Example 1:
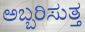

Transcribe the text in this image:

ಅಬ್ಬರಿಸುತ್ತ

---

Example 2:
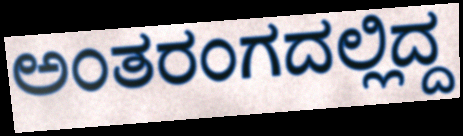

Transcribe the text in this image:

ಅಂತರಂಗದಲ್ಲಿದ್ದ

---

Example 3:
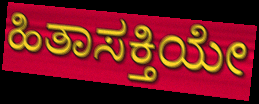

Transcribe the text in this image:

ಹಿತಾಸಕ್ತಿಯೇ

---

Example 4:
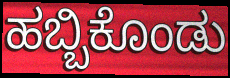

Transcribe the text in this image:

ಹಬ್ಬಿಕೊಂಡು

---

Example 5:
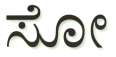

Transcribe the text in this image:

ಸೋ